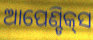
ଆପେଣ୍ଡିକ୍‌ସ